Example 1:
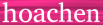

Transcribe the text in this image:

hoachen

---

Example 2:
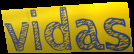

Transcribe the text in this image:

vidas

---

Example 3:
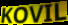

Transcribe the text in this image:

KOVIL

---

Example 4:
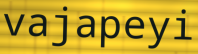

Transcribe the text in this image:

vajapeyi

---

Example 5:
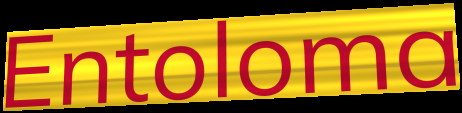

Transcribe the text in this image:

Entoloma